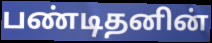
பண்டிதனின்